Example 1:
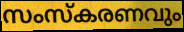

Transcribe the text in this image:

സംസ്കരണവും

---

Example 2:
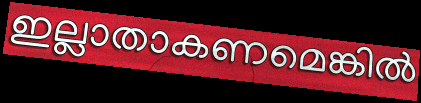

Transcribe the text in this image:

ഇല്ലാതാകണമെങ്കിൽ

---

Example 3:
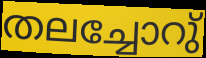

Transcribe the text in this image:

തലച്ചോറു്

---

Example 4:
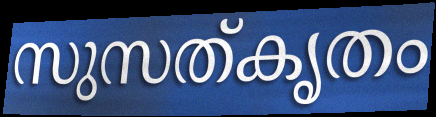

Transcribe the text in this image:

സുസത്കൃതം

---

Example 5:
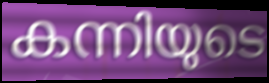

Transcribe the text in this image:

കന്നിയുടെ